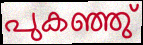
പുകഞ്ഞു്